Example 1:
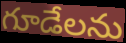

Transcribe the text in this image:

గూడేలను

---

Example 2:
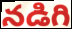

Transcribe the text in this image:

నడిగి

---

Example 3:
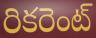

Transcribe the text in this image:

రికరెంట్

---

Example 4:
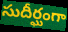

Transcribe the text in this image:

సుదీర్ఘంగా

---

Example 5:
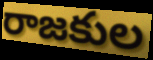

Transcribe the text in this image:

రాజకుల